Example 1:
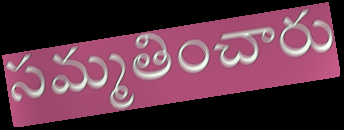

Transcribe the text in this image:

సమ్మతించారు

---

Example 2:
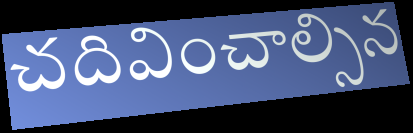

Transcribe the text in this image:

చదివించాల్సిన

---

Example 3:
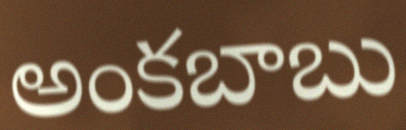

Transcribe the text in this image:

అంకబాబు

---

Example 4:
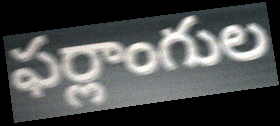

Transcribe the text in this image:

ఫర్లాంగుల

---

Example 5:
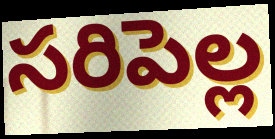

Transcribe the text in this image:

సరిపెల్ల